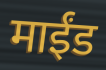
माईंड